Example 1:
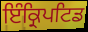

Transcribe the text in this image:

ਇੰਕ੍ਰਿਪਟਿਡ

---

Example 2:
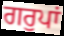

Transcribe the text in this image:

ਗਰੁਪਾਂ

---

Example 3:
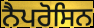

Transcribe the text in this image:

ਨੈਪਰੋਸਿਨ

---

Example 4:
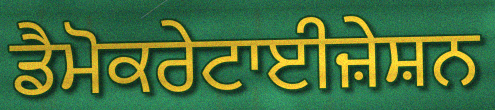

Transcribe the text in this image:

ਡੈਮੋਕਰੇਟਾਈਜ਼ੇਸ਼ਨ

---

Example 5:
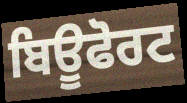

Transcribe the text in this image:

ਬਿਊਫੋਰਟ